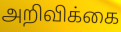
அறிவிக்கை